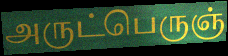
அருட்பெருஞ்